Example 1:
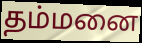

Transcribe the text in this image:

தம்மனை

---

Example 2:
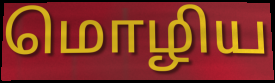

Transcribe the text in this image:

மொழிய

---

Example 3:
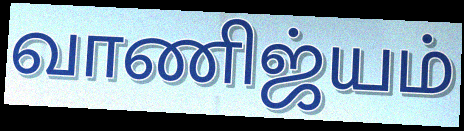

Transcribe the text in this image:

வாணிஜ்யம்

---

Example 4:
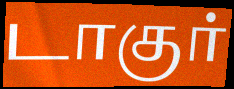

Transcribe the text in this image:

டாகுர்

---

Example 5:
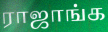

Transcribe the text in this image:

ராஜாங்க